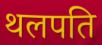
थलपति